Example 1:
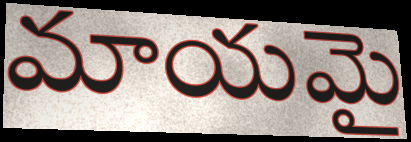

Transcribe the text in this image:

మాయమై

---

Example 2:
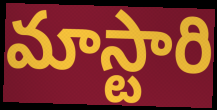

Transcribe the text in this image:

మాస్టారి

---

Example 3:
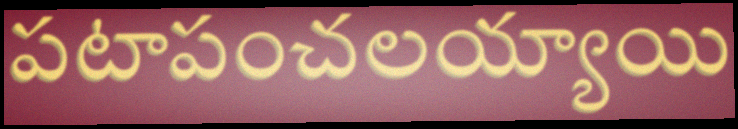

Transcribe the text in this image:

పటాపంచలయ్యాయి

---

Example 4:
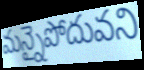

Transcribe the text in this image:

మన్నైపోదువని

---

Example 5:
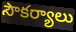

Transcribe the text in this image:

సౌకర్యాలు